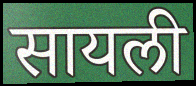
सायली